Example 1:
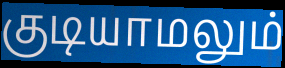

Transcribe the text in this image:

குடியாமலும்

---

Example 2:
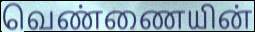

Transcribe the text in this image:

வெண்ணையின்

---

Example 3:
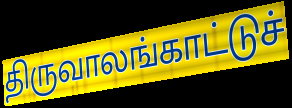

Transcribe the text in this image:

திருவாலங்காட்டுச்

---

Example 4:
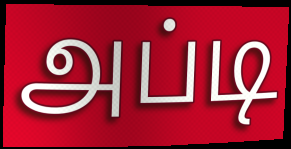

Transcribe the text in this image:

அப்டி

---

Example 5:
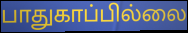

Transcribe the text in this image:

பாதுகாப்பில்லை